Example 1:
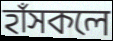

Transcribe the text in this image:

হাঁসকলে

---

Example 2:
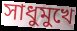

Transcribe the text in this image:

সাধুমুখে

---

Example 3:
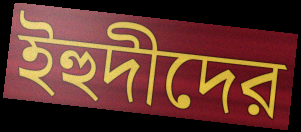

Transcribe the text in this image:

ইহুদীদের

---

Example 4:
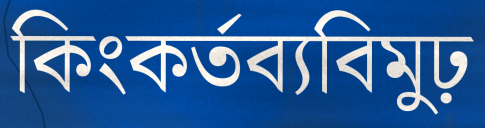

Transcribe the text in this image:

কিংকর্তব্যবিমুঢ়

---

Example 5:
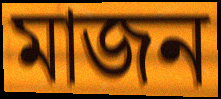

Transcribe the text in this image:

মাজন